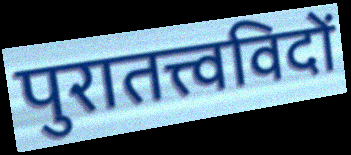
पुरातत्त्वविदों